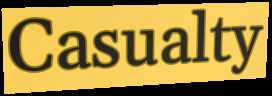
Casualty